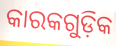
କାରକଗୁଡ଼ିକ